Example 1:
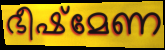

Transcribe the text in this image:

ഭീഷ്മേണ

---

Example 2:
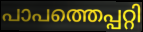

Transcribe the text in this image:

പാപത്തെപ്പറ്റി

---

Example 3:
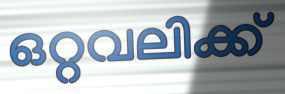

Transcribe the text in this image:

ഒറ്റവലിക്ക്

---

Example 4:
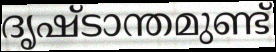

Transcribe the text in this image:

ദൃഷ്ടാന്തമുണ്ട്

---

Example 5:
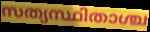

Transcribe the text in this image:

സത്യസ്ഥിതാശ്ച